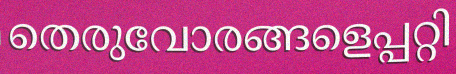
തെരുവോരങ്ങളെപ്പറ്റി